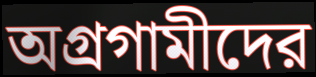
অগ্রগামীদের